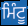
ਮਿੰਟੂ